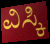
ವಿಸ್ಕಿ